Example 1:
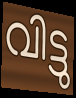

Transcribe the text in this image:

വിട്ടു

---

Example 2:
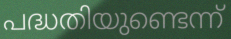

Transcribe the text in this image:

പദ്ധതിയുണ്ടെന്ന്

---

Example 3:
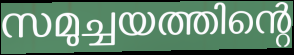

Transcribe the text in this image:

സമുച്ചയത്തിന്റെ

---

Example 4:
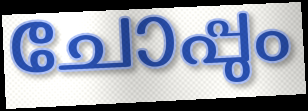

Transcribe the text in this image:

ചോപ്പും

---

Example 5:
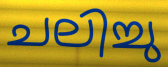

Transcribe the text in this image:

ചലിച്ചു